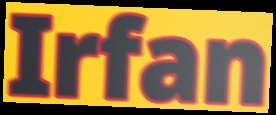
Irfan